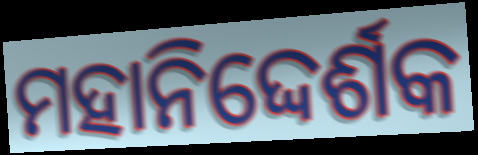
ମହାନିଦ୍ଦେର୍ଶକ